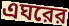
এঘরের